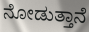
ನೋಡುತ್ತಾನೆ